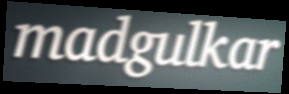
madgulkar